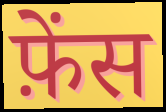
फ़ेंस